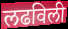
लढविली